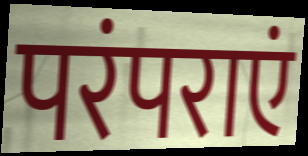
परंपराएं